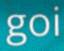
goi